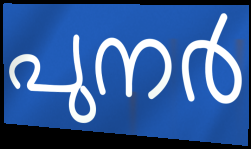
പുനർ